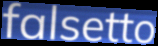
falsetto